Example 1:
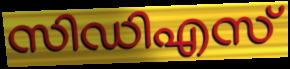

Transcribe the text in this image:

സിഡിഎസ്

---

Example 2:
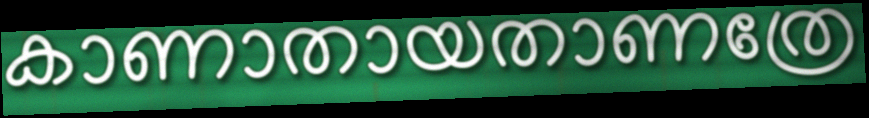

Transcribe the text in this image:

കാണാതായതാണത്രേ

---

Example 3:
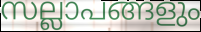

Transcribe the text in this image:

സല്ലാപങ്ങളും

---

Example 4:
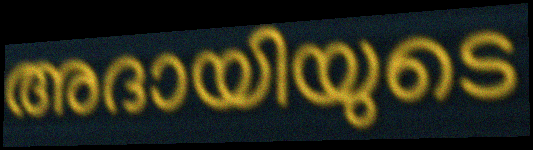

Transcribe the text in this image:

അദായിയുടെ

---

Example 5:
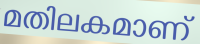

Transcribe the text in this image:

മതിലകമാണ്